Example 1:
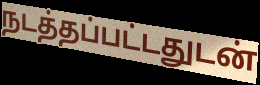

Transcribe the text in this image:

நடத்தப்பட்டதுடன்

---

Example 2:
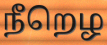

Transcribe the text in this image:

நீறெழ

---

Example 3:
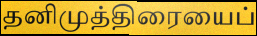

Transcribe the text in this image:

தனிமுத்திரையைப்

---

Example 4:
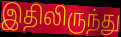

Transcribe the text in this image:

இதிலிருந்து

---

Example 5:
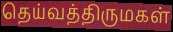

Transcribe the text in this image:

தெய்வத்திருமகள்